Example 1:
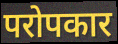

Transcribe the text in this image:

परोपकार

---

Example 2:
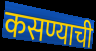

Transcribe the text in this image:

कसण्याची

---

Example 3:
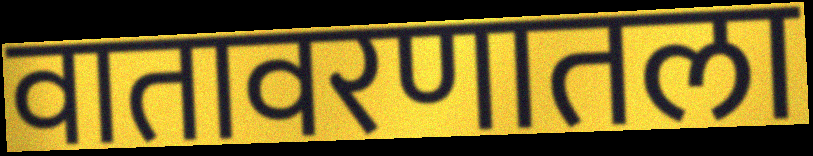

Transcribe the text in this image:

वातावरणातला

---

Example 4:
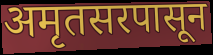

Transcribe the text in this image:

अमृतसरपासून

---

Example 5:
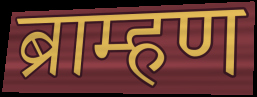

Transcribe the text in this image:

ब्राम्हण